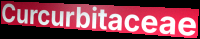
Curcurbitaceae